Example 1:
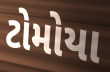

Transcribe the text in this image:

ટોમોયા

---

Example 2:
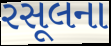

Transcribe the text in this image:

રસૂલના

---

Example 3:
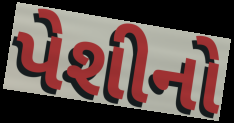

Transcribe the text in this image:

પેશીનો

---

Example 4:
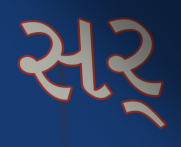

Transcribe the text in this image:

સર્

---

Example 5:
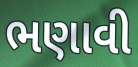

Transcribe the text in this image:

ભણાવી